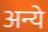
अन्ये